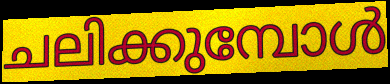
ചലിക്കുമ്പോൾ